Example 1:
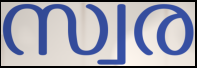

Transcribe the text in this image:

സ്വര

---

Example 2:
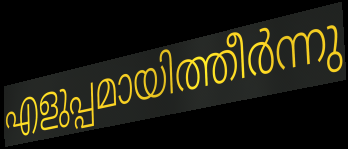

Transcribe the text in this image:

എളുപ്പമായിത്തീർന്നു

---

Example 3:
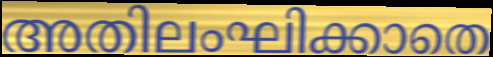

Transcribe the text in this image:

അതിലംഘിക്കാതെ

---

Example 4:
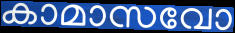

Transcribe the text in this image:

കാമാസവോ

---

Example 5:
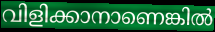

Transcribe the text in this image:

വിളിക്കാനാണെങ്കിൽ